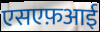
एसएफ़आई